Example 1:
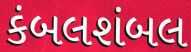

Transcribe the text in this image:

કંબલશંબલ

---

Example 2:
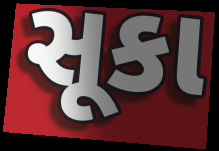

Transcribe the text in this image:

સૂકા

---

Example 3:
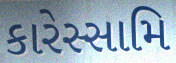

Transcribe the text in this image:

કારેસ્સામિ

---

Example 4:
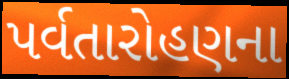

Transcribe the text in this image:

પર્વતારોહણના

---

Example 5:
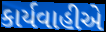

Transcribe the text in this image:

કાર્યવાહીએ